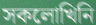
সকলোখিনি